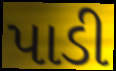
પાડી